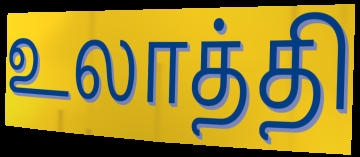
உலாத்தி